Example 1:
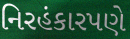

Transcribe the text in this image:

નિરહંકારપણે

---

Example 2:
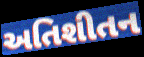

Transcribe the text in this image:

અતિશીતન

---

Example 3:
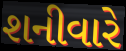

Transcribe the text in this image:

શનીવારે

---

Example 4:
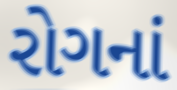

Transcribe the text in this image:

રોગનાં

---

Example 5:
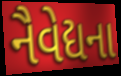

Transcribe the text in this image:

નૈવેદ્યના